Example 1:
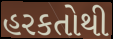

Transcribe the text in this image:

હરકતોથી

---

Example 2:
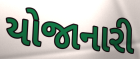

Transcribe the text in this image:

યોજાનારી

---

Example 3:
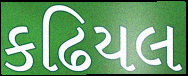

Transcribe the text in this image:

કઢિયલ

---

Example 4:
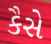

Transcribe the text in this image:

કૈસે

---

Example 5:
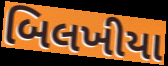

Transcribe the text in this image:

બિલખીયા